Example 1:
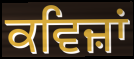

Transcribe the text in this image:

ਕਵਿਜ਼ਾਂ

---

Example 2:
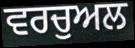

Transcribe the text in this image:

ਵਰਚੁਅਲ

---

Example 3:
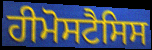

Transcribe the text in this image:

ਹੀਮੋਸਟੈਸਿਸ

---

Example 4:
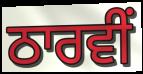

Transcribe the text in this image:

ਠਾਰਵੀਂ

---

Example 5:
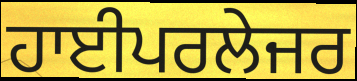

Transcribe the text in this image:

ਹਾਈਪਰਲੇਜਰ